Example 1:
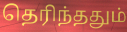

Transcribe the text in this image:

தெரிந்ததும்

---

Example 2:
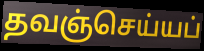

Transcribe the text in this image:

தவஞ்செய்யப்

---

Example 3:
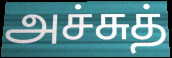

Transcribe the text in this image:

அச்சுத்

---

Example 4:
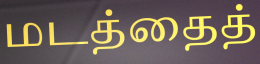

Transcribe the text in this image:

மடத்தைத்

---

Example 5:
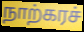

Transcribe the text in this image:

நாற்கரச்